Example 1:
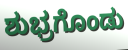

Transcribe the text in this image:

ಶುಭ್ರಗೊಂಡು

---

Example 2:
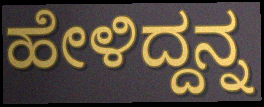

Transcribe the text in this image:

ಹೇಳಿದ್ದನ್ನ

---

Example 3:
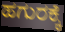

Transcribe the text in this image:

ಹಗುರಕ್ಕೆ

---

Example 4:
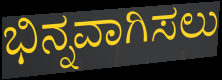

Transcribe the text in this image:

ಭಿನ್ನವಾಗಿಸಲು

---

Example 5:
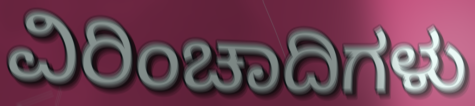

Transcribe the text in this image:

ವಿರಿಂಚಾದಿಗಳು